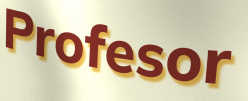
Profesor